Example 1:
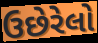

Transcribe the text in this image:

ઉછેરેલો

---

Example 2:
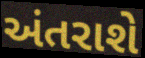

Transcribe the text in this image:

અંતરાશે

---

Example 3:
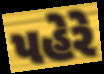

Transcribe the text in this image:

પહેરે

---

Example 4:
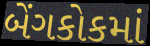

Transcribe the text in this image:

બેંગકોકમાં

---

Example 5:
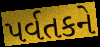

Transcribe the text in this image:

પર્વતકને